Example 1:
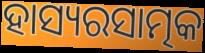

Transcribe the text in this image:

ହାସ୍ୟରସାତ୍ମକ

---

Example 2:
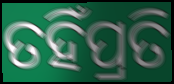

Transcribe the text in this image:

ତହିଁପ୍ରତି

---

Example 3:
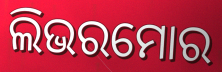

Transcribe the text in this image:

ଲିଭରମୋର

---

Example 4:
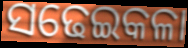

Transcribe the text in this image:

ସଢେଇକଳା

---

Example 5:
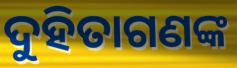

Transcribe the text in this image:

ଦୁହିତାଗଣଙ୍କ